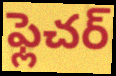
ఫ్లెచర్